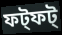
ফট্ফট্